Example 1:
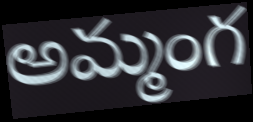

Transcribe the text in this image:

అమ్మంగ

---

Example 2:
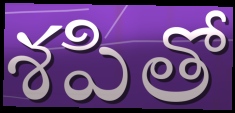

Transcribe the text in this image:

శపితో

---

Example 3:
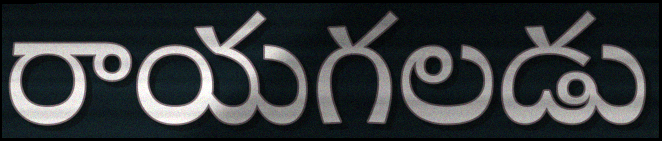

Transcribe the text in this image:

రాయగలడు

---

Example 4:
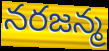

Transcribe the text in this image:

నరజన్మ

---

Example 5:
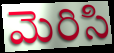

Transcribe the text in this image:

మెరిసి